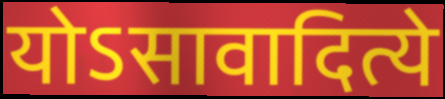
योऽसावादित्ये